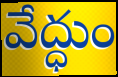
వేద్ధుం